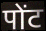
पोंट